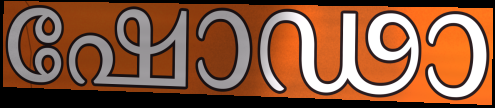
ഷോഢാ